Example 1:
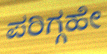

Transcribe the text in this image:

ಪರಿಗ್ಗಹೇ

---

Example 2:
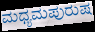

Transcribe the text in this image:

ಮಧ್ಯಮಪುರುಷ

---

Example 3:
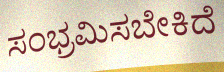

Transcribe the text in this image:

ಸಂಭ್ರಮಿಸಬೇಕಿದೆ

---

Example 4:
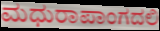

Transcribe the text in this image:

ಮಧುರಾಪಾಂಗದಲಿ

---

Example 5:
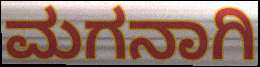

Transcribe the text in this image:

ಮಗನಾಗಿ